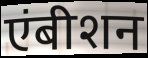
एंबीशन